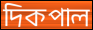
দিকপাল